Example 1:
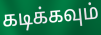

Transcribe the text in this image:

கடிக்கவும்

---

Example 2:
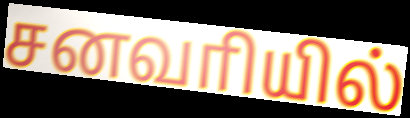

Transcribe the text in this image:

சனவரியில்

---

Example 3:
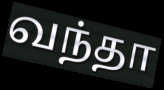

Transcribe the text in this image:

வந்தா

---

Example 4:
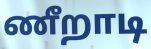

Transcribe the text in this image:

ணீறாடி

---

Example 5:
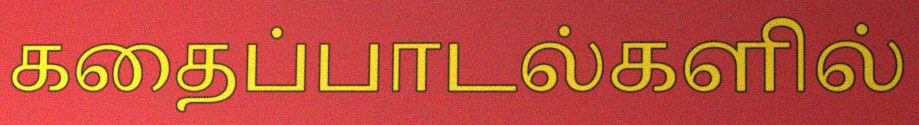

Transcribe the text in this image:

கதைப்பாடல்களில்